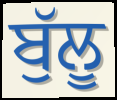
ਬੁੱਲੂ